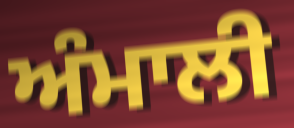
ਅੰਮਾਲੀ